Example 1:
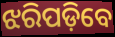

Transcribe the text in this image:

ଝରିପଡ଼ିବେ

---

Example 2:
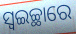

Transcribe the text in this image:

ସ୍ଵଇଚ୍ଛାରେ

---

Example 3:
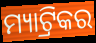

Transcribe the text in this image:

ମ୍ୟାଟ୍ରିକର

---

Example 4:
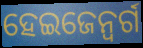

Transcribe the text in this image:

ହେଇଜେନ୍ବର୍ଗ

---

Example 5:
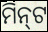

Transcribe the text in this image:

ମିନ୍‌ଟ